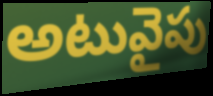
అటువైపు